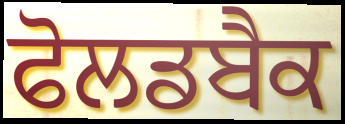
ਫੋਲਡਬੈਕ